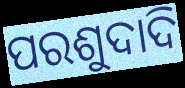
ପରଶୁଦାଦି